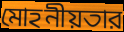
মোহনীয়তার